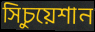
সিচুয়েশান